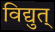
विद्युत्